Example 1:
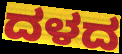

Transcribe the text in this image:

ದಳದ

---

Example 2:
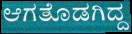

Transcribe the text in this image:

ಆಗತೊಡಗಿದ್ದ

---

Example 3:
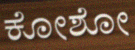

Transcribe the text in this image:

ಕೋಶೋ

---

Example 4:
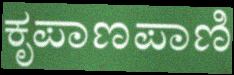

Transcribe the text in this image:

ಕೃಪಾಣಪಾಣಿ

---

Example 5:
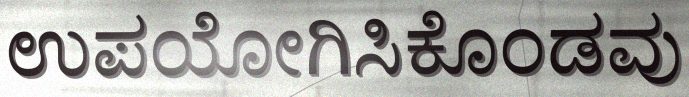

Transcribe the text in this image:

ಉಪಯೋಗಿಸಿಕೊಂಡವು